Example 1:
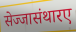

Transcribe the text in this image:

सेज्जासंथारए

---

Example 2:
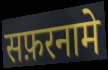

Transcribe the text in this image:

सफ़रनामे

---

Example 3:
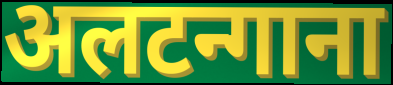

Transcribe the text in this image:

अलटन्गाना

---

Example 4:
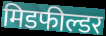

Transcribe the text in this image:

मिडफील्डर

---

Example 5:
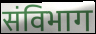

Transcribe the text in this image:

संविभाग